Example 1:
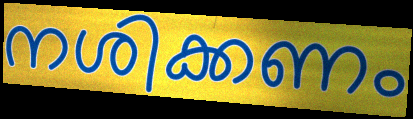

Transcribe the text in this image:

നശിക്കണം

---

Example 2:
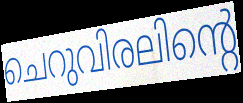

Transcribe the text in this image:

ചെറുവിരലിന്റെ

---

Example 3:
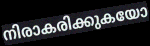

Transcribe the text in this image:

നിരാകരിക്കുകയോ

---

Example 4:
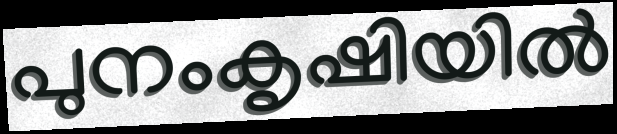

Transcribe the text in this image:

പുനംകൃഷിയിൽ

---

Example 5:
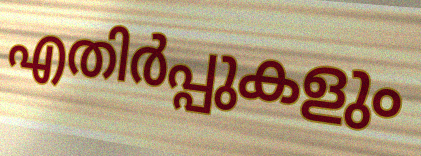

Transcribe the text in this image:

എതിർപ്പുകളും